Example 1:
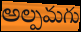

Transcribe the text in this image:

అల్పమగు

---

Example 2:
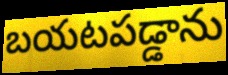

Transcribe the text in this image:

బయటపడ్డాను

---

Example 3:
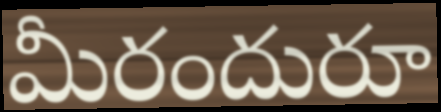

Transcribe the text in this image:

మీరందురూ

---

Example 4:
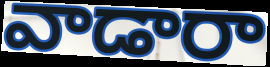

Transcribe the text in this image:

వాడారా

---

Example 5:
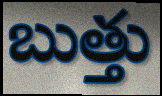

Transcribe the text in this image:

బుత్తు